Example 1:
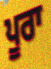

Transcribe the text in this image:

ਪੂਰਾ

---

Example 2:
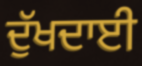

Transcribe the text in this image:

ਦੁੱਖਦਾਈ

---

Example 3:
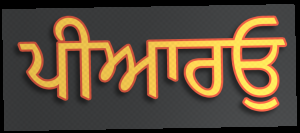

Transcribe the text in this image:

ਪੀਆਰਓੁ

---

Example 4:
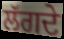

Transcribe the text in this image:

ਲੱਗਦੇ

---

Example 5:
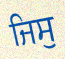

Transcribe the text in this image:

ਜਿਸੁ